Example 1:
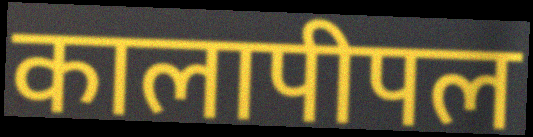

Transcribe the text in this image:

कालापीपल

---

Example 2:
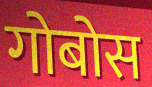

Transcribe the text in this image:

गोबोस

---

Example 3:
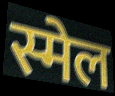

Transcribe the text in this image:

स्‍मेल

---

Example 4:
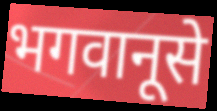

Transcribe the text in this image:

भगवानूसे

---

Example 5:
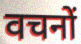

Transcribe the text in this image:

वचनों